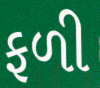
ફળી